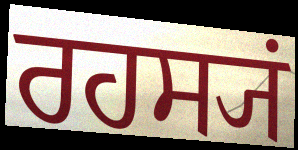
ਰਹਸ੍ਯਂ